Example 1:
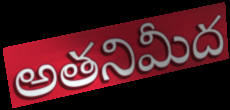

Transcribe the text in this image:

అతనిమీద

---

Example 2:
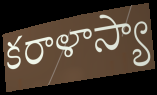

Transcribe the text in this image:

కరాళాస్యా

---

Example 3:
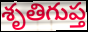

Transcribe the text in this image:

శృతిగుప్త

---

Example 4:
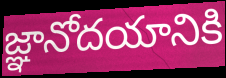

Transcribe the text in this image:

జ్ఞానోదయానికి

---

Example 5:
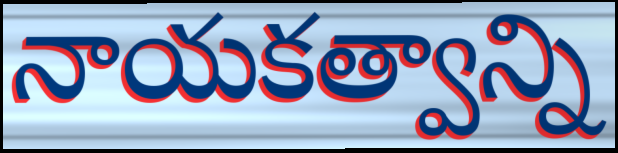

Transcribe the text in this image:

నాయకత్వాన్ని